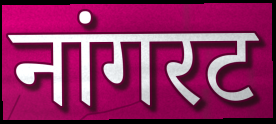
नांगरट